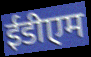
ईडीएम